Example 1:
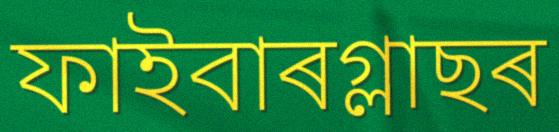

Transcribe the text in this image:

ফাইবাৰগ্লাছৰ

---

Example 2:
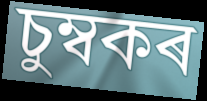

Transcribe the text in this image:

চুম্বকৰ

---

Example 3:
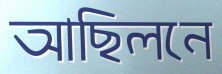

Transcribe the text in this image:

আছিলনে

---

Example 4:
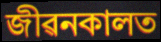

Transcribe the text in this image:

জীৱনকালত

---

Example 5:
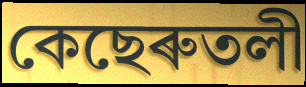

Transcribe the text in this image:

কেছেৰুতলী